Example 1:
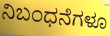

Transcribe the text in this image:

ನಿಬಂಧನೆಗಳೂ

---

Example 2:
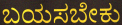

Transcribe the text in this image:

ಬಯಸಬೇಕು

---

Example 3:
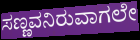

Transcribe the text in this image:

ಸಣ್ಣವನಿರುವಾಗಲೇ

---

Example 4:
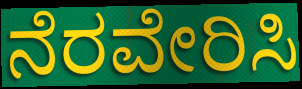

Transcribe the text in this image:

ನೆರವೇರಿಸಿ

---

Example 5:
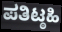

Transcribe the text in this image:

ಪತಿಟ್ಠಹಿ